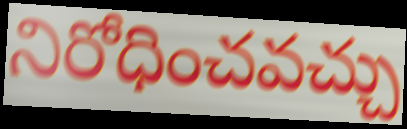
నిరోధించవచ్చు